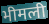
भीमली